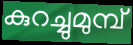
കുറച്ചുമുമ്പ്